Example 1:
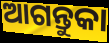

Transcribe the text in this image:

ଆଗନ୍ତୁକା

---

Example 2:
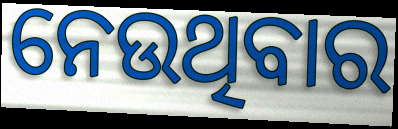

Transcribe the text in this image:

ନେଉଥିବାର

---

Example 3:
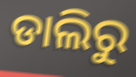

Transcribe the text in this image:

ଡାଲିରୁ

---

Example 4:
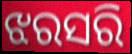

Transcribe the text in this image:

ଝରସରି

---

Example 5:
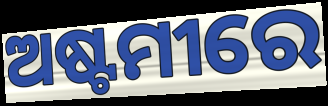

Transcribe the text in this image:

ଅଷ୍ଟମୀରେ